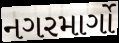
નગરમાર્ગો